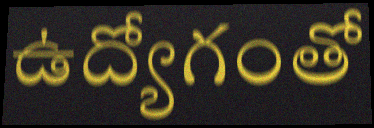
ఉద్యోగంతో